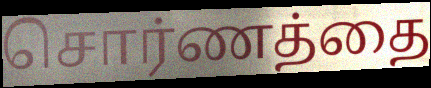
சொர்ணத்தை